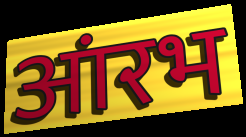
आंरभ